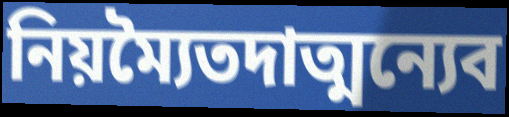
নিয়ম্যৈতদাত্মন্যেব